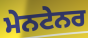
ਮੇਨਟੇਨਰ